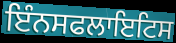
ਇੰਨਸਫਲਾਇਟਿਸ